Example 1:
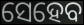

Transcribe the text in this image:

ସେହେବ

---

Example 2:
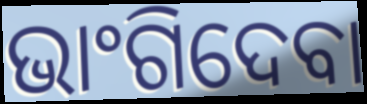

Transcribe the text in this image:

ଭାଂଗିଦେବା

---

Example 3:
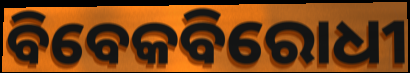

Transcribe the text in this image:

ବିବେକବିରୋଧୀ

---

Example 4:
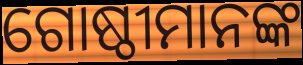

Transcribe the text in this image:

ଗୋଷ୍ଠୀମାନଙ୍କ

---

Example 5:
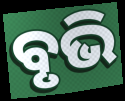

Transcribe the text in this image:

ବୃଭି